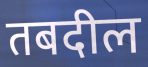
तबदील